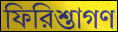
ফিরিশ্তাগণ